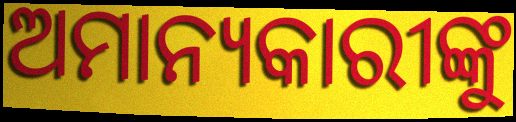
ଅମାନ୍ୟକାରୀଙ୍କୁ